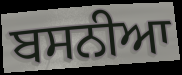
ਬਸਨੀਆ